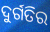
ଦୁର୍ଗତିର